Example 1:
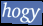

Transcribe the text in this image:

hogy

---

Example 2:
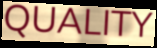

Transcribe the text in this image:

QUALITY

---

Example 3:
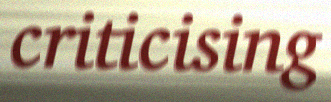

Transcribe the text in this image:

criticising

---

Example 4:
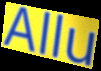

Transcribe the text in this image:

Allu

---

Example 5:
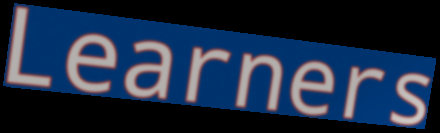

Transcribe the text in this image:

Learners